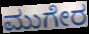
ಮುಗೇರ